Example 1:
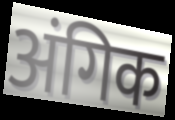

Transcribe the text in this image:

अंगिक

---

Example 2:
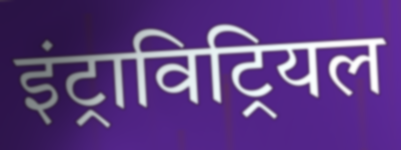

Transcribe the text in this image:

इंट्राविट्रियल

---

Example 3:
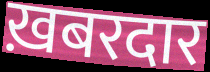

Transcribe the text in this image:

ख़बरदार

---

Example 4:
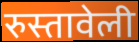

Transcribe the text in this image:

रुस्तावेली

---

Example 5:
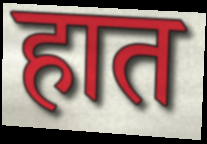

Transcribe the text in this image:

हात